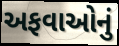
અફવાઓનું